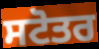
ਸਟੋਤਰ